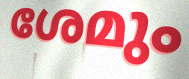
ശേമും